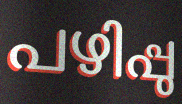
പഴിപ്പു